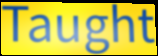
Taught